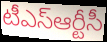
టీఎస్ఆర్టీసీ